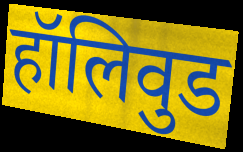
हॉलिवुड